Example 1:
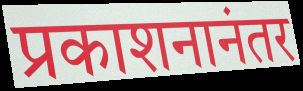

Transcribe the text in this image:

प्रकाशनानंतर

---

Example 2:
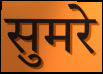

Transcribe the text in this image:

सुमरे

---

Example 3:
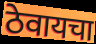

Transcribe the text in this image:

ठेवायचा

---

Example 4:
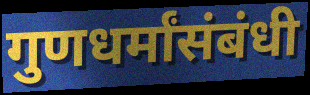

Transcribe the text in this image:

गुणधर्मांसंबंधी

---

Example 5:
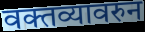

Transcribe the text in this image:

वक्तव्यावरुन